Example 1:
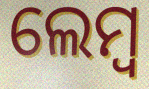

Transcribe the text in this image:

ଲେମ୍ବ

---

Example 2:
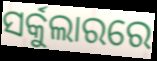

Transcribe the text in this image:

ସର୍କୁଲାରରେ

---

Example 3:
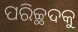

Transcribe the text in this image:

ପରିଚ୍ଛଦକୁ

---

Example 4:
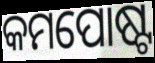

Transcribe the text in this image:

କମପୋଷ୍ଟ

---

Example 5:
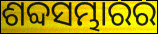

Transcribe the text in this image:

ଶବ୍ଦସମ୍ଭାରର